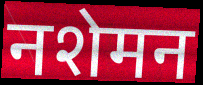
नशेमन